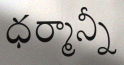
ధర్మాన్నీ